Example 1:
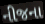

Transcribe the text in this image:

નીજના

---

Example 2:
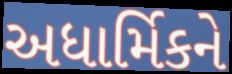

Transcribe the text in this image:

અધાર્મિકને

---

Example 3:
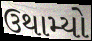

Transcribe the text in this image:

ઉથામ્યો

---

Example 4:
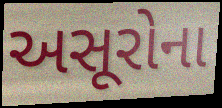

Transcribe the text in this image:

અસૂરોના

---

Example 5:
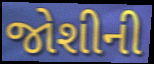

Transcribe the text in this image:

જોશીની